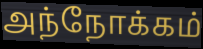
அந்நோக்கம்